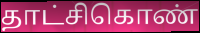
தாட்சிகொண்